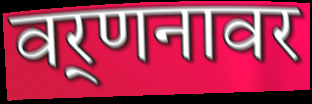
वर्णनावर